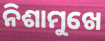
ନିଶାମୁଖେ